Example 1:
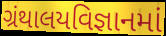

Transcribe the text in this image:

ગ્રંથાલયવિજ્ઞાનમાં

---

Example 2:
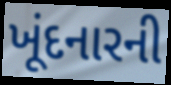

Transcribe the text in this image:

ખૂંદનારની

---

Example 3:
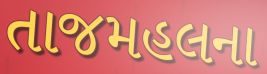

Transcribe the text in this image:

તાજમહલના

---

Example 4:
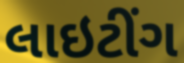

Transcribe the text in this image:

લાઇટીંગ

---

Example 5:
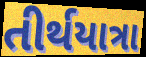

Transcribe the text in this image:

તીર્થયાત્રા